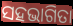
ସହଭାଗିତା